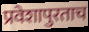
प्रवेशापुरताच